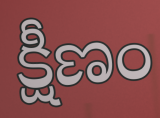
క్షీణం